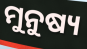
ମୁନୁଷ୍ୟ